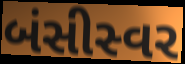
બંસીસ્વર